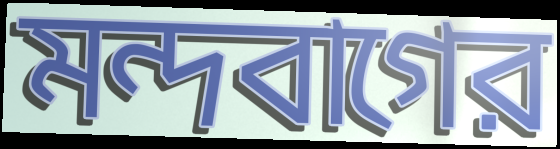
মন্দবাগের